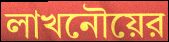
লাখনৌয়ের